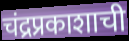
चंद्रप्रकाशाची